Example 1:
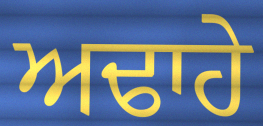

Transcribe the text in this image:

ਅਢਾਹੇ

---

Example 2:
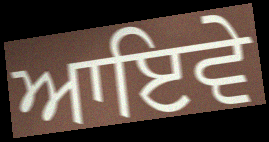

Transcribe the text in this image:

ਆਇਵੇ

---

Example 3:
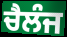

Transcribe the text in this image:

ਚੈਲੰਜ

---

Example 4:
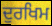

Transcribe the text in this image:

ਦੁਰਖਿਮ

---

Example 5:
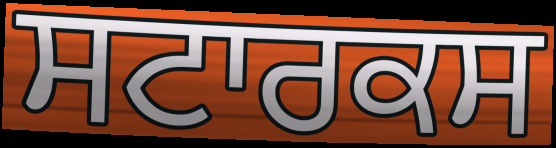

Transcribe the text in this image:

ਸਟਾਰਕਸ